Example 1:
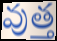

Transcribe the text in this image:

వుత్త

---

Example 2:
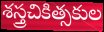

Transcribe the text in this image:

శస్త్రచికిత్సకుల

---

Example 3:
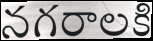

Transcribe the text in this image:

నగరాలకి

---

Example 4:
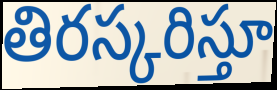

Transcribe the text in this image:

తిరస్కరిస్తూ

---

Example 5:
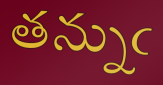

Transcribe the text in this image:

తన్నుఁ